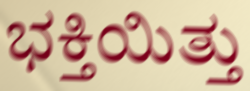
ಭಕ್ತಿಯಿತ್ತು